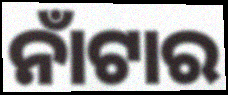
ନାଁଟାର